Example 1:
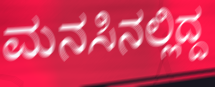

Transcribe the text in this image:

ಮನಸಿನಲ್ಲಿದ್ದ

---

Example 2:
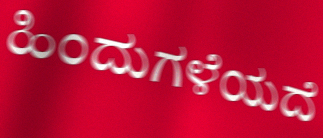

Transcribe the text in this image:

ಹಿಂದುಗಳೆಯದೆ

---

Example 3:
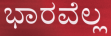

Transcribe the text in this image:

ಭಾರವೆಲ್ಲ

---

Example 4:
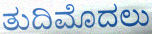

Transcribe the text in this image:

ತುದಿಮೊದಲು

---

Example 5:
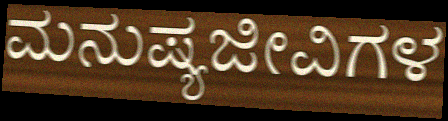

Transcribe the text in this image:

ಮನುಷ್ಯಜೀವಿಗಳ